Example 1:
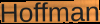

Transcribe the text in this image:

Hoffman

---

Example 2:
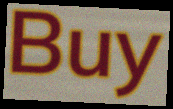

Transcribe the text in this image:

Buy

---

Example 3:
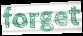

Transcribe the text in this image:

forget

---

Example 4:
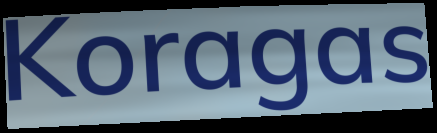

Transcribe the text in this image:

Koragas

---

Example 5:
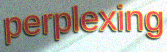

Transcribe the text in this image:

perplexing